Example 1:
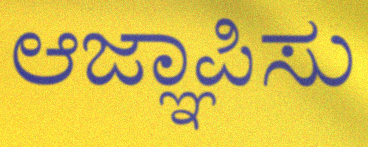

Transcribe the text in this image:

ಆಜ್ಞಾಪಿಸು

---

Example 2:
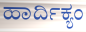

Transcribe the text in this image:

ಹಾರ್ದಿಕ್ಯಂ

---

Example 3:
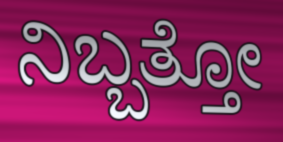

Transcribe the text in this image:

ನಿಬ್ಬತ್ತೋ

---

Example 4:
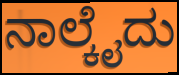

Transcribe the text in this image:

ನಾಲ್ಕೈದು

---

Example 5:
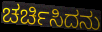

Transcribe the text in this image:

ಚರ್ಚಿಸಿದನು